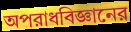
অপরাধবিজ্ঞানের